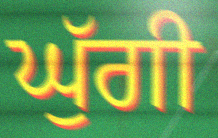
ਘੁੱਗੀ